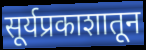
सूर्यप्रकाशातून